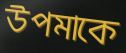
উপমাকে